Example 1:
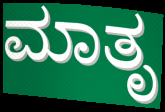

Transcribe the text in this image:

ಮಾತೃ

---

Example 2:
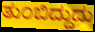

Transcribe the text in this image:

ತುಂಬಿದ್ದುದು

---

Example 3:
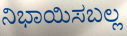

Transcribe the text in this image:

ನಿಭಾಯಿಸಬಲ್ಲ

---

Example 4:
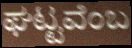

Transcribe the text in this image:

ಘಟ್ಟವೆಂಬ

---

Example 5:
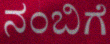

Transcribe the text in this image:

ನಂಬಿಗೆ